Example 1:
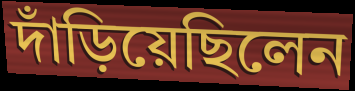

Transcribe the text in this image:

দাঁড়িয়েছিলেন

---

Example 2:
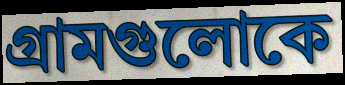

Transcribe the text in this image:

গ্রামগুলোকে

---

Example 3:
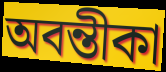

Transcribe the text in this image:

অবন্তীকা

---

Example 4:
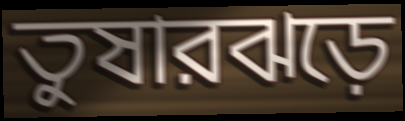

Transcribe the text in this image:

তুষারঝড়ে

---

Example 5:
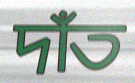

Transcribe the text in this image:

দাঁত